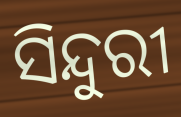
ସିନ୍ଦୁରୀ